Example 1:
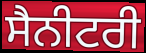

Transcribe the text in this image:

ਸੈਨੀਟਰੀ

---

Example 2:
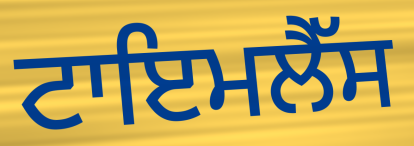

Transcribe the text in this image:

ਟਾਇਮਲੈੱਸ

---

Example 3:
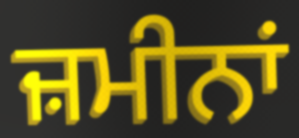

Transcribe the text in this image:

ਜ਼ਮੀਨਾਂ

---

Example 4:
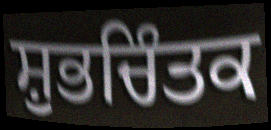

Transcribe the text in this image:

ਸ਼ੁਭਚਿੰਤਕ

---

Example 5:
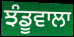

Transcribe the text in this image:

ਝੰਡੂਵਾਲਾ